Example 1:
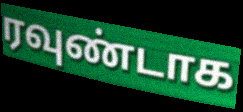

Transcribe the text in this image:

ரவுண்டாக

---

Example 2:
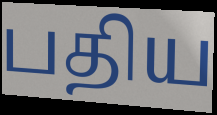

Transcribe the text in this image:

பதிய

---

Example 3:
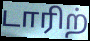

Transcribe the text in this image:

டாரிற்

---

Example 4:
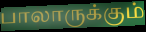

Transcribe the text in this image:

பாலாருக்கும்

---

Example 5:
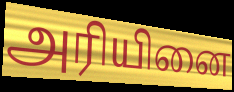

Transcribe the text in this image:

அரியினை